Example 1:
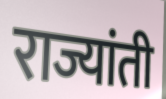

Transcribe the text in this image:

राज्यांती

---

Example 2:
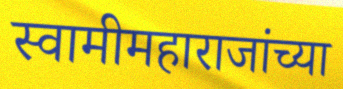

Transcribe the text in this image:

स्वामीमहाराजांच्या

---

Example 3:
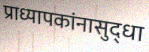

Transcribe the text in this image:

प्राध्यापकांनासुद्धा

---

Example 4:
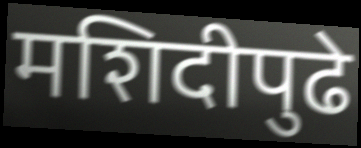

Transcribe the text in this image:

मशिदीपुढे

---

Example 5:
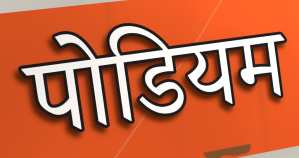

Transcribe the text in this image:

पोडियम